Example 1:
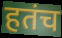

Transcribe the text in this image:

हतंच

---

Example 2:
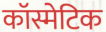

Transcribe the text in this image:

कॉस्मेटिक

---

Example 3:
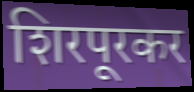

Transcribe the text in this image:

शिरपूरकर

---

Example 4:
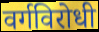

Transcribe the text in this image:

वर्गविरोधी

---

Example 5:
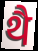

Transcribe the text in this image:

थै